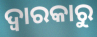
ଦ୍ଵାରକାରୁ